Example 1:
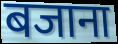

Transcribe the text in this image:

बजाना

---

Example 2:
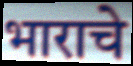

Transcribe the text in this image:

भाराचे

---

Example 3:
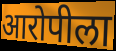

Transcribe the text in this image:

आरोपीला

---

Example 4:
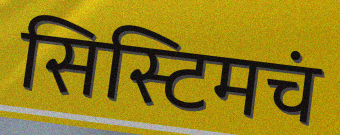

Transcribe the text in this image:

सिस्टिमचं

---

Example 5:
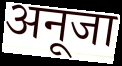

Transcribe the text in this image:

अनूजा